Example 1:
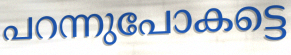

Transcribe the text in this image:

പറന്നുപോകട്ടെ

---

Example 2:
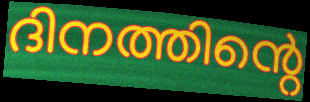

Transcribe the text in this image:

ദിനത്തിന്റെ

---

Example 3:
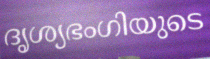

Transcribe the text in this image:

ദൃശ്യഭംഗിയുടെ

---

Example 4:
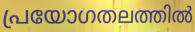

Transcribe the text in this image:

പ്രയോഗതലത്തിൽ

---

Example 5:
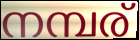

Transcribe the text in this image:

നമ്പര്